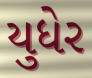
યુધેર